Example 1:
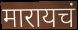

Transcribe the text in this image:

मारायचं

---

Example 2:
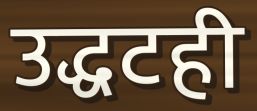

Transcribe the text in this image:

उद्धटही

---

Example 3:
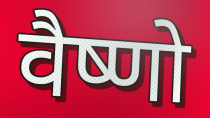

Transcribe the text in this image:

वैष्णो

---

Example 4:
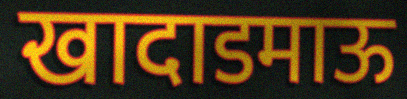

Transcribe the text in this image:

खादाडमाऊ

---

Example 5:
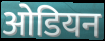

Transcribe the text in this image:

ओडियन